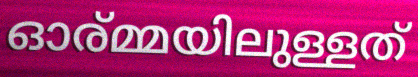
ഓര്മ്മയിലുള്ളത്